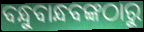
ବନ୍ଧୁବାନ୍ଧବଙ୍କଠାରୁ